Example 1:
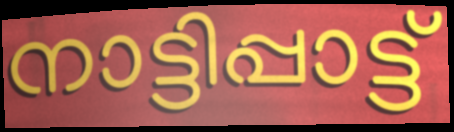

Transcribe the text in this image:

നാട്ടിപ്പാട്ട്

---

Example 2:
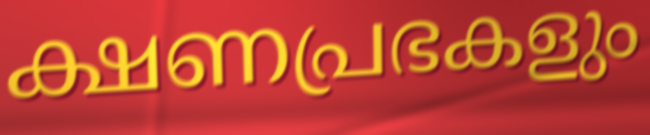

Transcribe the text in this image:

ക്ഷണപ്രഭകളും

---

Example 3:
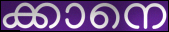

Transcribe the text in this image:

ക്കാനെ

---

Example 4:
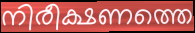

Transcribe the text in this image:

നിരീക്ഷണത്തെ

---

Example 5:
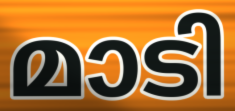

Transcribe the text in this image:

മാടി